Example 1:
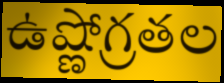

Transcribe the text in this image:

ఉష్ణోగ్రతల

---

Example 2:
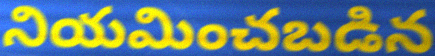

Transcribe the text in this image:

నియమించబడిన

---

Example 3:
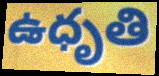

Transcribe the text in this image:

ఉధృతి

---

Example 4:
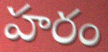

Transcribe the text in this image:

హరం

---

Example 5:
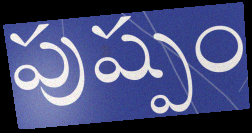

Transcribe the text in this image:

పుష్పం